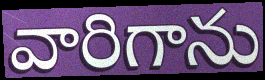
వారిగాను